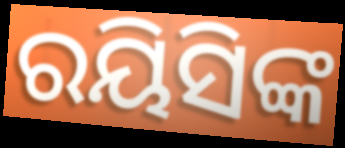
ରୟିସିଙ୍କ